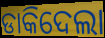
ଡାକିଦେଲା